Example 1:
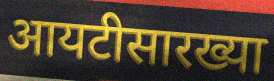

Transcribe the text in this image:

आयटीसारख्या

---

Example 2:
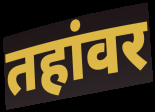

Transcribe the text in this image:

तहांवर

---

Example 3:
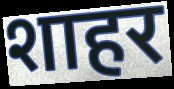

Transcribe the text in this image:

शाहर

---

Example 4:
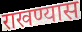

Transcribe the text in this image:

राखण्यास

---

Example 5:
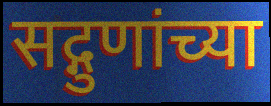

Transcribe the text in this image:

सद्गुणांच्या